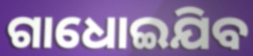
ଗାଧୋଇଯିବ